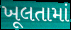
ખૂલતામાં